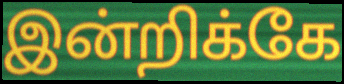
இன்றிக்கே